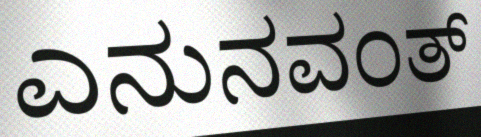
ಎನುನವಂತ್